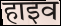
हाइव